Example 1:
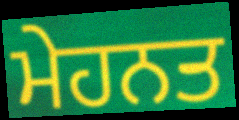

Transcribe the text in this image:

ਮੇਹਨਤ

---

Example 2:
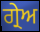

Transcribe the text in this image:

ਗ੍ਰੇਅ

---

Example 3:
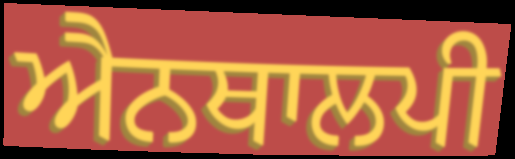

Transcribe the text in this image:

ਐਨਥਾਲਪੀ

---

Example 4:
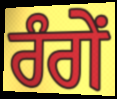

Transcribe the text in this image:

ਰੰਗੇਂ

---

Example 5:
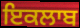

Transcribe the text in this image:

ਇਕਲਾਬ